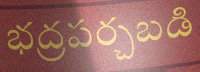
భద్రపర్చబడి